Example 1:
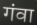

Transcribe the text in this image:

गंवा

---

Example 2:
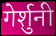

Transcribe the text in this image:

गेर्शुनी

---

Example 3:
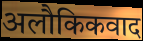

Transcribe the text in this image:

अलौकिकवाद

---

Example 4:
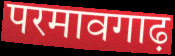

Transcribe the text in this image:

परमावगाढ़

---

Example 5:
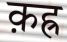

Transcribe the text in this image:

क़ह्र